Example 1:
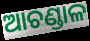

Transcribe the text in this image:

ଆଚଣ୍ଡାଳ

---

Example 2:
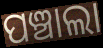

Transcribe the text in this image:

ପଞ୍ଚାଲା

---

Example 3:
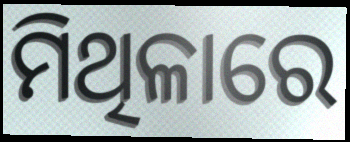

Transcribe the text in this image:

ମିଥିଳାରେ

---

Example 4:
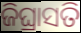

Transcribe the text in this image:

ଜିଘ୍ରାସତି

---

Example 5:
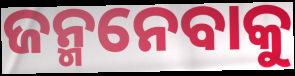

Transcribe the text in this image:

ଜନ୍ମନେବାକୁ